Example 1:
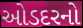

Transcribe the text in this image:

ઓડદરનો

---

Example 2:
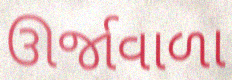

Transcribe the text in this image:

ઊર્જાવાળા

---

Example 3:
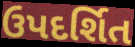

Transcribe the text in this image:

ઉપદર્શિત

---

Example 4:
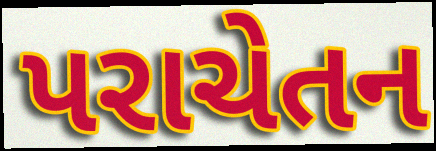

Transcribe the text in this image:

પરાચેતન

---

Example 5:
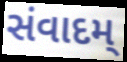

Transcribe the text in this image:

સંવાદમ્